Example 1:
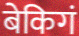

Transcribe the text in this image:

बेकिगं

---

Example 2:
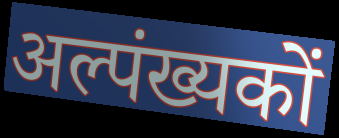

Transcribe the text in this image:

अल्पंख्यकों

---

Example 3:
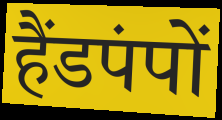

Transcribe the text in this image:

हैंडपंपों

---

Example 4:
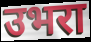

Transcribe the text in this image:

उभरा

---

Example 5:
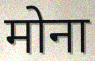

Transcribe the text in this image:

मोना